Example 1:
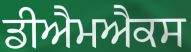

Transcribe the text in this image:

ਡੀਐਮਐਕਸ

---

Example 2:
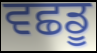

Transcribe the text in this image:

ਵਛਡੂ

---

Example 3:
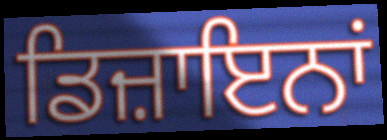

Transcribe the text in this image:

ਡਿਜ਼ਾਇਨਾਂ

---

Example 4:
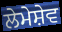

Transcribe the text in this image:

ਲੇਮੇਸ਼ੇਵ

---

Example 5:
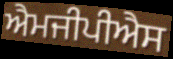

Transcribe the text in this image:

ਐਮਜੀਪੀਐਸ